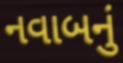
નવાબનું